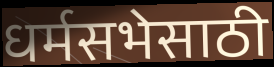
धर्मसभेसाठी